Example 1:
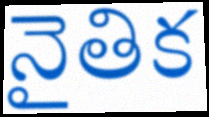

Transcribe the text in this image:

నైతిక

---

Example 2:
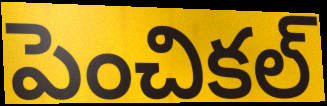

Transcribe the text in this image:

పెంచికల్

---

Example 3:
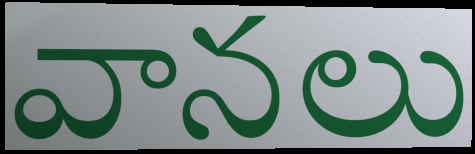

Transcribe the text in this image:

వానలు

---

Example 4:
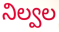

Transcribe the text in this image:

నిల్వల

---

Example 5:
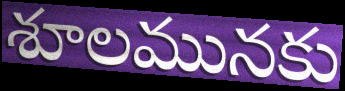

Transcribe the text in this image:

శూలమునకు